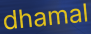
dhamal